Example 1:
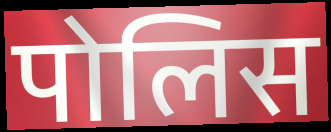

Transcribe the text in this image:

पोलिस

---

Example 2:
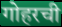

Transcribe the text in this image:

गोहरची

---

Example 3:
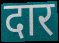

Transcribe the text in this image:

दार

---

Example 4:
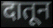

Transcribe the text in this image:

दातून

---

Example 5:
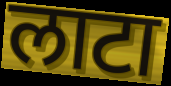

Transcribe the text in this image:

लाटा